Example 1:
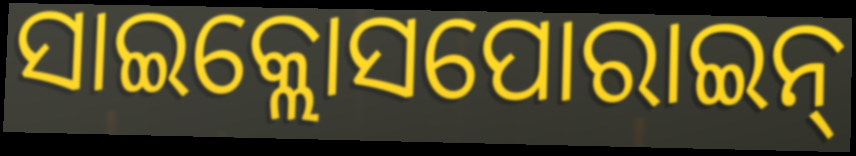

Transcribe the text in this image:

ସାଇକ୍ଲୋସପୋରାଇନ୍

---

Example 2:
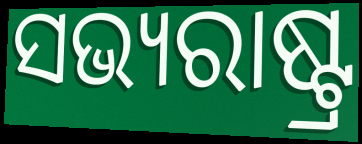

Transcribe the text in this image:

ସଭ୍ୟରାଷ୍ଟ୍ର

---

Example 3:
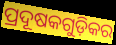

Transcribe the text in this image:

ପ୍ରଦୂଷକଗୁଡ଼ିକର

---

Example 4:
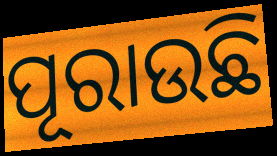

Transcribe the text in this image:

ପୂରାଉଛି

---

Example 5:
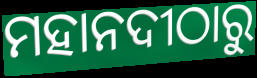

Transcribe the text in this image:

ମହାନଦୀଠାରୁ